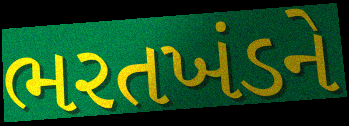
ભરતખંડને